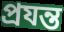
প্রযন্ত